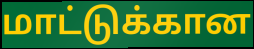
மாட்டுக்கான